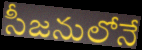
సీజనులోనే